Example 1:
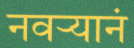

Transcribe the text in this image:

नवर्‍यानं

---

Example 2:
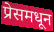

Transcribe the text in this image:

प्रेसमधून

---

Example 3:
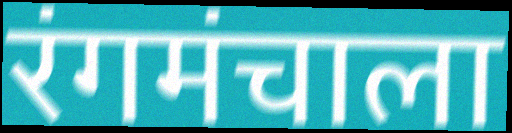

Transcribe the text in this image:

रंगमंचाला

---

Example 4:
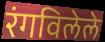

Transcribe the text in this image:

रंगविलेले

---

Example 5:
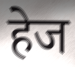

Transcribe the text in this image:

हेज